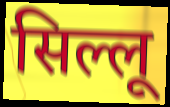
सिल्लू